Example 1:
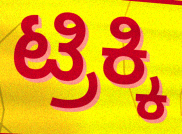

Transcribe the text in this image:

ಟ್ರಿಕ್ಕಿ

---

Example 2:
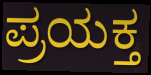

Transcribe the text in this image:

ಪ್ರಯಕ್ತ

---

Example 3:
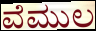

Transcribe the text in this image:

ವೆಮುಲ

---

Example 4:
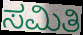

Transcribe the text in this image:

ಸಮಿತಿ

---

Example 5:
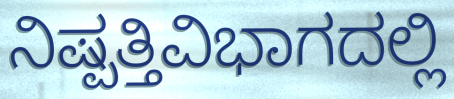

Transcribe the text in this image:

ನಿಷ್ಪತ್ತಿವಿಭಾಗದಲ್ಲಿ